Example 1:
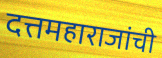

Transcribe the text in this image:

दत्तमहाराजांची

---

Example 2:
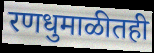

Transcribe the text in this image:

रणधुमाळीतही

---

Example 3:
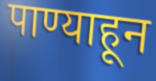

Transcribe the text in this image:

पाण्याहून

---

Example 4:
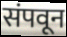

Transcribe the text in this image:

संपवून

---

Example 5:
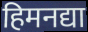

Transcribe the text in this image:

हिमनद्या